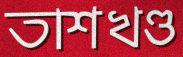
তাশখণ্ড